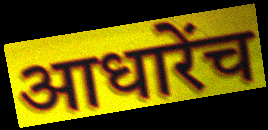
आधारेंच